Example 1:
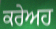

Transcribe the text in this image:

ਕਰੇਅਹ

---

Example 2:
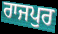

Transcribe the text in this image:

ਰਾਜਪੁਰ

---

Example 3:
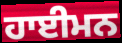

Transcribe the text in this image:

ਹਾਈਮਨ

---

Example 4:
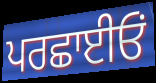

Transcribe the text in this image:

ਪਰਛਾਈਓਂ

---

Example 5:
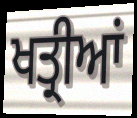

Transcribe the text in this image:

ਖਤ੍ਰੀਆਂ